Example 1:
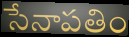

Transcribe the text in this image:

సేనాపతిం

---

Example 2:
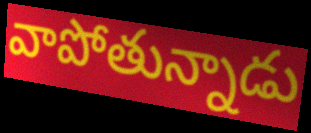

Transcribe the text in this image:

వాపోతున్నాడు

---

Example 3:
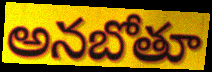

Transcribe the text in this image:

అనబోతూ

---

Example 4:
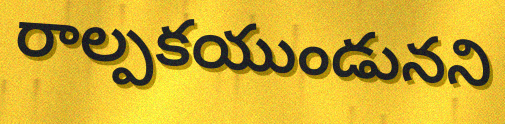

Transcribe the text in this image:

రాల్పకయుండునని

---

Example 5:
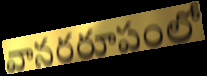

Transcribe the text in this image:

వానరరూపంలో